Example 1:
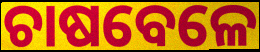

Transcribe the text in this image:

ଚାଷବେଳେ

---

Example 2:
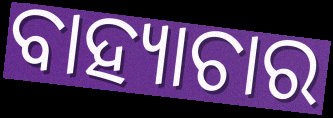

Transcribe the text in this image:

ବାହ୍ୟାଚାର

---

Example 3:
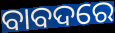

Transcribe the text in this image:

ବାବଦରେ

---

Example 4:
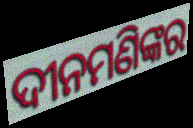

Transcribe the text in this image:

ଦୀନମଣିଙ୍କର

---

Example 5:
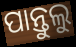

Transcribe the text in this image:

ପାନ୍ତୁଲୁ